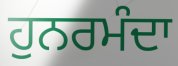
ਹੁਨਰਮੰਦਾ